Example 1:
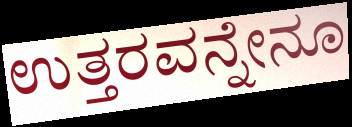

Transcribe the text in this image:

ಉತ್ತರವನ್ನೇನೂ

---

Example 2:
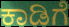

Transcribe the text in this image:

ಕಾಡಿಗೆ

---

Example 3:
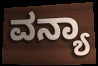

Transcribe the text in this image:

ವನ್ಯಾ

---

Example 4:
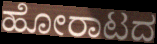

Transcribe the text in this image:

ಹೋರಾಟದ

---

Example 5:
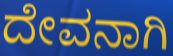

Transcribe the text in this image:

ದೇವನಾಗಿ